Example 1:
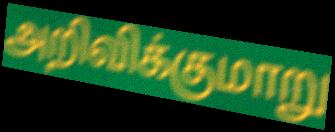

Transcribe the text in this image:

அறிவிக்குமாறு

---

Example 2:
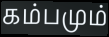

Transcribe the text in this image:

கம்பமும்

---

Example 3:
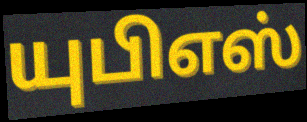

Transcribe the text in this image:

யுபிஎஸ்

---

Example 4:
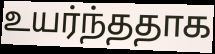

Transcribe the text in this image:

உயர்ந்ததாக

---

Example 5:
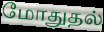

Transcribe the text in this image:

மோதுதல்